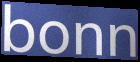
bonn